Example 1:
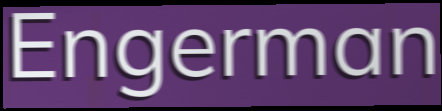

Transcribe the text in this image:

Engerman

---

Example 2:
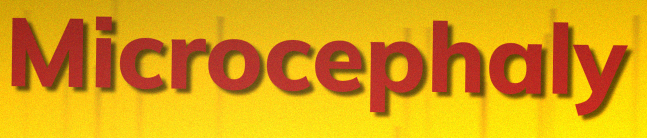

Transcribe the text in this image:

Microcephaly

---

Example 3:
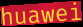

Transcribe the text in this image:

huawei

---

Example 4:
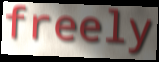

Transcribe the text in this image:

freely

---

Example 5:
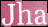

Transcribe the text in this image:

Jha